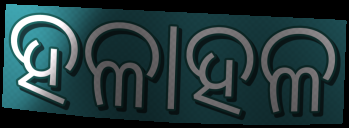
ହଳାହଳ